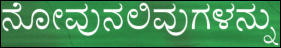
ನೋವುನಲಿವುಗಳನ್ನು